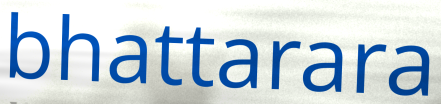
bhattarara